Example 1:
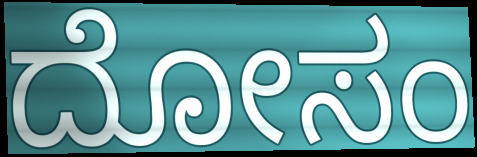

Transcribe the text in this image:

ದೋಸಂ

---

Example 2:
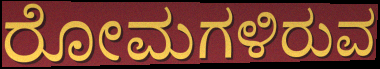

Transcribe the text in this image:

ರೋಮಗಳಿರುವ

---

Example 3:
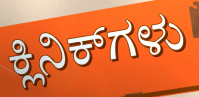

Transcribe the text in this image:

ಕ್ಲಿನಿಕ್‌ಗಳು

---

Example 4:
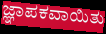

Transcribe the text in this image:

ಜ್ಞಾಪಕವಾಯಿತು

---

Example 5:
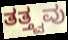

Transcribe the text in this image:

ತತ್ತ್ವವು